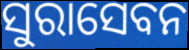
ସୁରାସେବନ